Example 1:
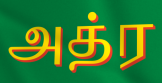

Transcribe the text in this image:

அத்ர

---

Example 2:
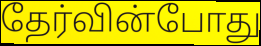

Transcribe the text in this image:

தேர்வின்போது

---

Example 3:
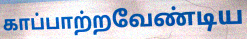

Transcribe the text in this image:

காப்பாற்றவேண்டிய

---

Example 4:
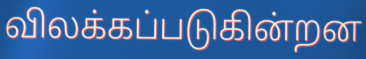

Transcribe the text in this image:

விலக்கப்படுகின்றன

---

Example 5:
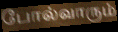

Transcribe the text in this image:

போல்வாரும்